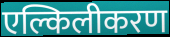
एल्किलीकरण